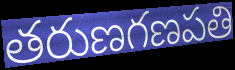
తరుణగణపతి